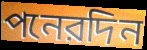
পনেরদিন